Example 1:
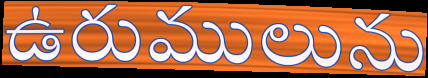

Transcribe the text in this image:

ఉరుములును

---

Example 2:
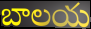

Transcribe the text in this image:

బాలయ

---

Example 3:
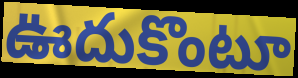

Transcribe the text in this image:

ఊదుకొంటూ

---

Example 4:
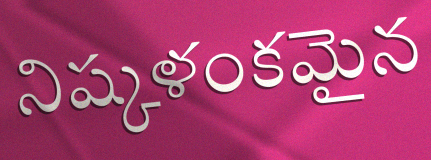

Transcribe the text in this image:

నిష్కళంకమైన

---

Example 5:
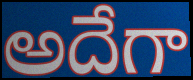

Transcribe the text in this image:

అదేగా